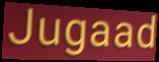
Jugaad